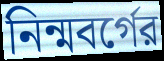
নিন্মবর্গের